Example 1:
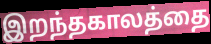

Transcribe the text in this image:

இறந்தகாலத்தை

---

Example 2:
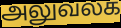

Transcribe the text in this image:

அலுவலக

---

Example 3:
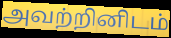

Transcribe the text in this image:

அவற்றினிடம்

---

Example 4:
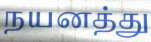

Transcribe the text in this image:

நயனத்து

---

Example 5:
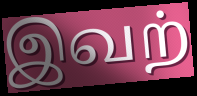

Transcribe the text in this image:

இவற்